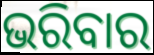
ଭରିବାର